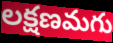
లక్షణమగు